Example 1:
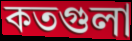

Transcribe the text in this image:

কতগুলা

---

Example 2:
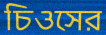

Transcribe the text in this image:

চিওসের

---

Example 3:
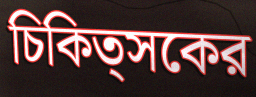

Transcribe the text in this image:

চিকিত্সকের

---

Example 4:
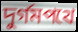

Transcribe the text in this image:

দুর্গমপথে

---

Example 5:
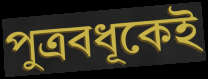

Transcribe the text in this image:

পুত্রবধূকেই